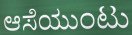
ಆಸೆಯುಂಟು